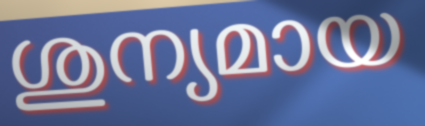
ശുന്യമായ